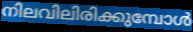
നിലവിലിരിക്കുമ്പോൾ